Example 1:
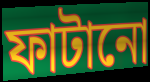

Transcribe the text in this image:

ফাটানো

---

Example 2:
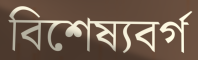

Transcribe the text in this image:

বিশেষ্যবর্গ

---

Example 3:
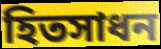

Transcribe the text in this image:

হিতসাধন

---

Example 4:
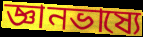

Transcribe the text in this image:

জ্ঞানভাষ্যে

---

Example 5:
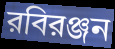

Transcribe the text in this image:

রবিরঞ্জন